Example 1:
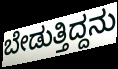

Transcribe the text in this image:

ಬೇಡುತ್ತಿದ್ದನು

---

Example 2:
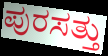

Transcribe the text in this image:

ಪುರಸತ್ತು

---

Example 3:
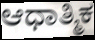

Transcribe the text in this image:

ಆಧಾತ್ಮಿಕ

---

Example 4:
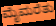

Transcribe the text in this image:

ಮೈಮರೆತು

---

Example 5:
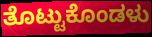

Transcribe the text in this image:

ತೊಟ್ಟುಕೊಂಡಳು